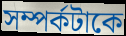
সম্পর্কটাকে